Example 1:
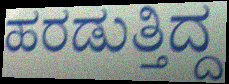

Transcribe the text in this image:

ಹರಡುತ್ತಿದ್ದ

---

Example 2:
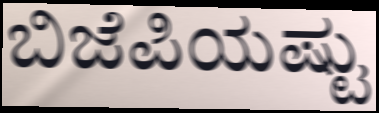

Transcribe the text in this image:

ಬಿಜೆಪಿಯಷ್ಟು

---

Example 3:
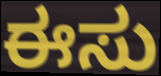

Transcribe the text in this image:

ಈಸು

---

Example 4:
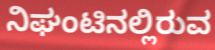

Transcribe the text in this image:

ನಿಘಂಟಿನಲ್ಲಿರುವ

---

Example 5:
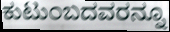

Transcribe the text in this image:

ಕುಟುಂಬದವರನ್ನೂ